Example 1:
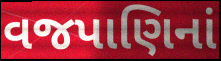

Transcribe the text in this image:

વજપાણિનાં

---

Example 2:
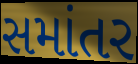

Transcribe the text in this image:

સમાંતર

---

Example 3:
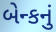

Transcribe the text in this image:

બેન્કનું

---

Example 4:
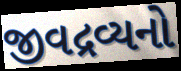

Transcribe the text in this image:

જીવદ્રવ્યનો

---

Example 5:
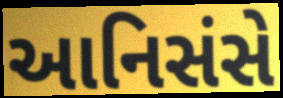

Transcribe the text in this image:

આનિસંસે